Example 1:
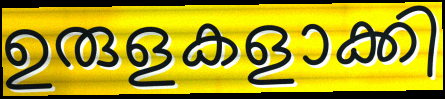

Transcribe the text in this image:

ഉരുളകളാക്കി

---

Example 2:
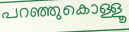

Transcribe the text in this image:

പറഞ്ഞുകൊള്ളൂ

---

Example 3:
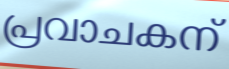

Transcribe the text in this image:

പ്രവാചകന്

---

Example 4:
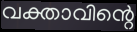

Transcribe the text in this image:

വക്താവിന്റെ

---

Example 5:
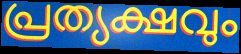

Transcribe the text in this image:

പ്രത്യക്ഷവും